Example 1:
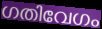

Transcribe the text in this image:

ഗതിവേഗം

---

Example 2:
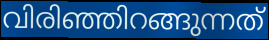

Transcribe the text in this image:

വിരിഞ്ഞിറങ്ങുന്നത്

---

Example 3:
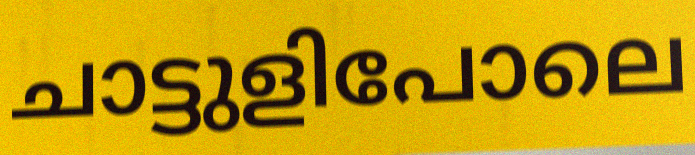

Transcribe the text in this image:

ചാട്ടുളിപോലെ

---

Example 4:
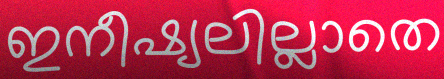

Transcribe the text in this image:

ഇനീഷ്യലില്ലാതെ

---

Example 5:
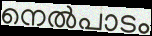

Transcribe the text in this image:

നെൽപാടം